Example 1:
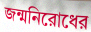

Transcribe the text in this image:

জন্মনিরোধের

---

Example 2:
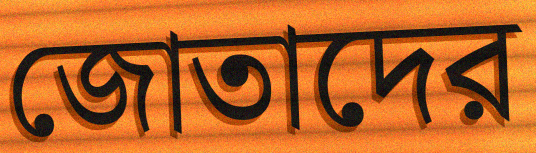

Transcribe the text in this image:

জোতাদের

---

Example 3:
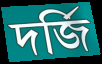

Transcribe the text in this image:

দর্জি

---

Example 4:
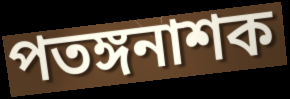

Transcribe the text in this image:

পতঙ্গনাশক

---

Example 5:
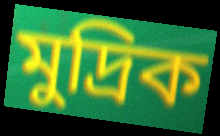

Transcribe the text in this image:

মুদ্রিক